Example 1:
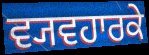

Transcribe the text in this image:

ਵ੍ਯਵਹਾਰਕੇ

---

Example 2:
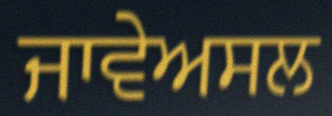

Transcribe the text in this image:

ਜਾਵੇਅਸਲ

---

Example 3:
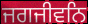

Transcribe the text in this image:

ਜਗਜੀਵਨਿ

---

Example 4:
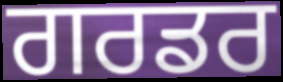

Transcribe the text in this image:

ਗਰਡਰ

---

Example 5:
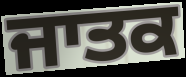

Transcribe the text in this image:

ਜਾਤਕ